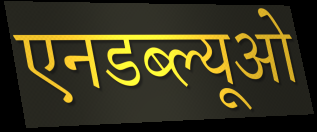
एनडब्ल्यूओ